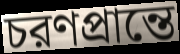
চরণপ্রান্তে